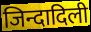
जिन्दादिली